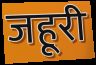
जहूरी